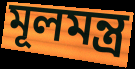
মূলমন্ত্র